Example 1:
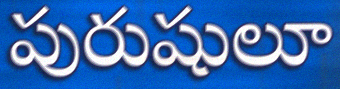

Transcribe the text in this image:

పురుషులూ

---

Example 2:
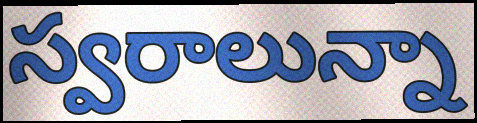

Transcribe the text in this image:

స్వరాలున్నా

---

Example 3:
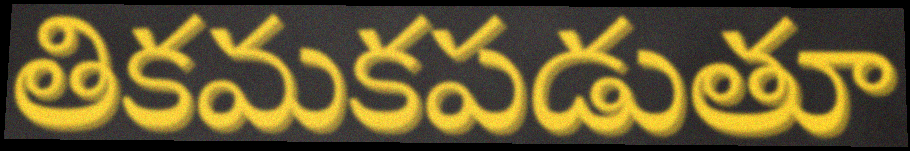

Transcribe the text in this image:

తికమకపడుతూ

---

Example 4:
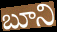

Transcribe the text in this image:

బూని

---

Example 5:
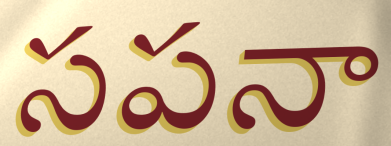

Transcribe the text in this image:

సపనా